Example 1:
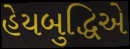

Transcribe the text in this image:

હેયબુદ્ધિએ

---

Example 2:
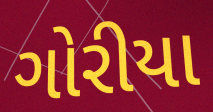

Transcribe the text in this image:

ગોરીયા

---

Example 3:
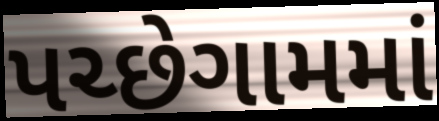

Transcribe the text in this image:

પચ્છેગામમાં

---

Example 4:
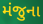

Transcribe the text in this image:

મંજુના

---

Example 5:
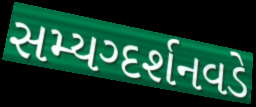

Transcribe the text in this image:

સમ્યગ્દર્શનવડે